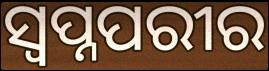
ସ୍ୱପ୍ନପରୀର